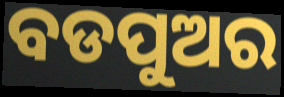
ବଡପୁଅର